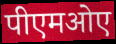
पीएमओए